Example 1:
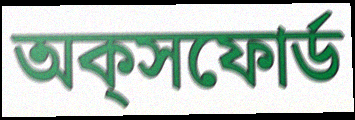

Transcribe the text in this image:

অক্‌সফোর্ড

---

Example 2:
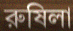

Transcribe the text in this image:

রুষিলা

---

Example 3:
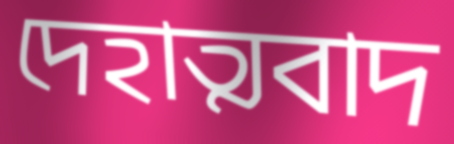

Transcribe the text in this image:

দেহাত্মবাদ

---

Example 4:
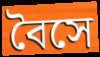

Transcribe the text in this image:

বৈসে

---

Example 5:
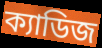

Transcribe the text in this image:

ক্যাডিজ